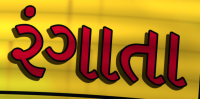
રંગાતા